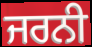
ਜਰਨੀ